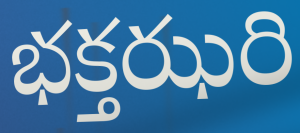
భక్తఝరి